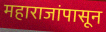
महाराजांपासून